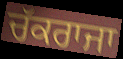
ਚੱਕਰਾਜਾ